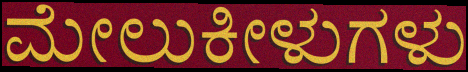
ಮೇಲುಕೀಳುಗಳು